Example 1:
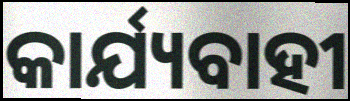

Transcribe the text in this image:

କାର୍ଯ୍ୟବାହୀ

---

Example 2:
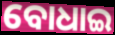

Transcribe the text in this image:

ବୋଧାଇ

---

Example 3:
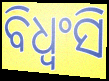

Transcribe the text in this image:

ବିଧ୍ୱଂସି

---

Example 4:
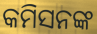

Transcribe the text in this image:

କମିସନଙ୍କ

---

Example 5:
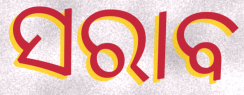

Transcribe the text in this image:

ସରାବ